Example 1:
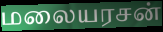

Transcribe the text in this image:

மலையரசன்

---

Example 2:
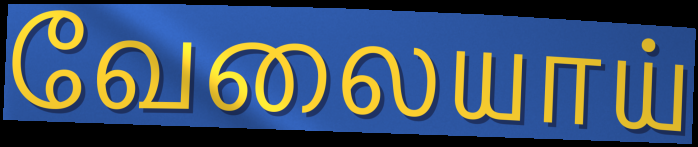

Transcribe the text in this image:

வேலையாய்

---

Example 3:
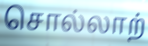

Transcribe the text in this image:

சொல்லாற்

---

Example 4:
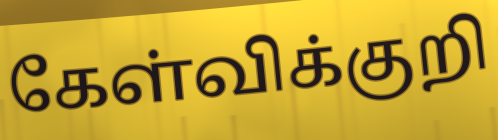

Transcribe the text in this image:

கேள்விக்குறி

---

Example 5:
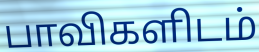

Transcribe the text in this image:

பாவிகளிடம்